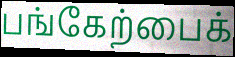
பங்கேற்பைக்